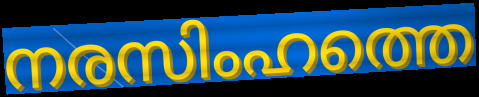
നരസിംഹത്തെ